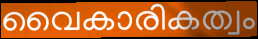
വൈകാരികത്വം